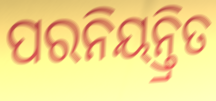
ପରନିୟନ୍ତ୍ରିତ